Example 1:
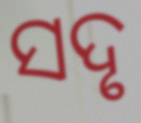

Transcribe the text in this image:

ସଦୃ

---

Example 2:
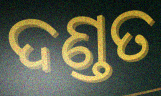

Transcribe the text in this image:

ଦଣ୍ଡତ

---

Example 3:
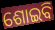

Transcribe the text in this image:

ଶୋଇବି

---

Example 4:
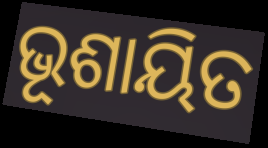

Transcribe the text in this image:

ଭୂଶାୟିତ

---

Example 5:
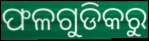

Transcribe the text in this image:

ଫଳଗୁଡିକରୁ